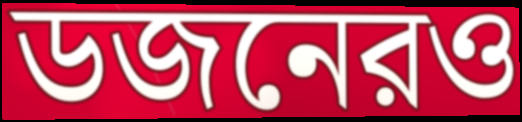
ডজনেরও